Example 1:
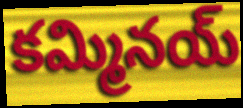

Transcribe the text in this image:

కమ్మినయ్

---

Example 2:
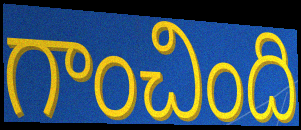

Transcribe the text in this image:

గాంచింది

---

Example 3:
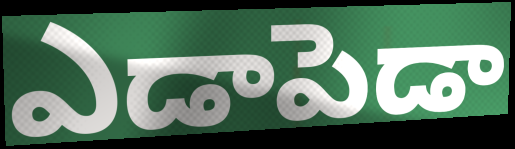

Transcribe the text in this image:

ఎడాపెడా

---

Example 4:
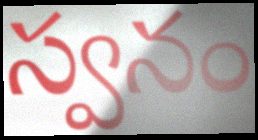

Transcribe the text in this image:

స్వనం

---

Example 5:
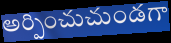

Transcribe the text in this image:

అర్పించుచుండగా